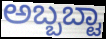
ಅಬ್ಬಬ್ಟಾ